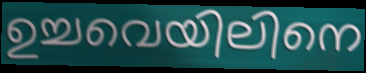
ഉച്ചവെയിലിനെ